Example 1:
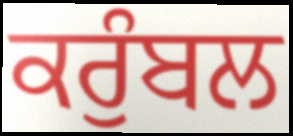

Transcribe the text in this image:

ਕਰੁੰਬਲ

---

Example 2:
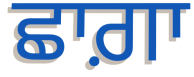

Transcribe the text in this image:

ਛਾਗ਼ਾ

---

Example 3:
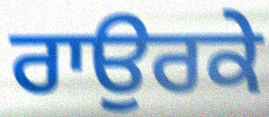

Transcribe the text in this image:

ਰਾਉਰਕੇ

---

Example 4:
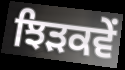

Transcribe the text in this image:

ਝਿੜਕਵੇਂ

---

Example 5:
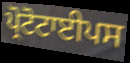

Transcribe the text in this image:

ਪ੍ਰੋਟੋਟਾਈਪਸ